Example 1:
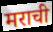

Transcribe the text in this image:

मराची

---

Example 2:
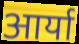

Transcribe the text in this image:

आर्या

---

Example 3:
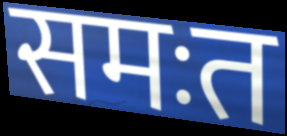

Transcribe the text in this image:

समःत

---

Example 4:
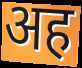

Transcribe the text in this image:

अह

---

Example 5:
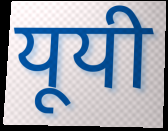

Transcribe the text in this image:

यूयी